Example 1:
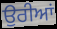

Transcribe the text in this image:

ਉਰੀਆਂ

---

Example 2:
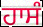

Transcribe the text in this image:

ਹਾਸੰ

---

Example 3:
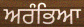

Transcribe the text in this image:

ਅਰੰਭਿਆ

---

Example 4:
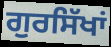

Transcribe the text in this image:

ਗੁਰਸਿੱਖਾਂ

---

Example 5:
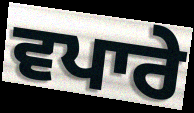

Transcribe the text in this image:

ਵਪਾਰੇ